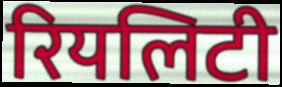
रियलिटी